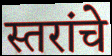
स्तरांचे